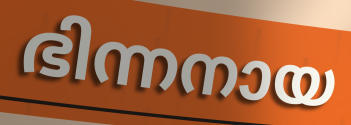
ഭിന്നനായ